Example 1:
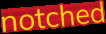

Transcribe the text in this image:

notched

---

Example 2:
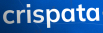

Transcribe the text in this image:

crispata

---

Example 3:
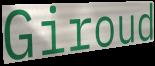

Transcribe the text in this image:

Giroud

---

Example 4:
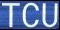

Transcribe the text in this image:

TCU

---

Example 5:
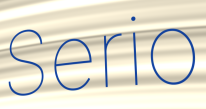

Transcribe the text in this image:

Serio